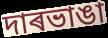
দাৰভাঙা